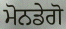
ਮੋਨਡੇਗੋ